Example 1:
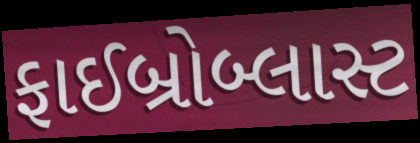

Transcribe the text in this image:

ફાઈબ્રોબ્લાસ્ટ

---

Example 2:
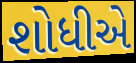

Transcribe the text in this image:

શોધીએ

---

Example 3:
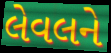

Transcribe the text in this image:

લેવલને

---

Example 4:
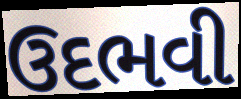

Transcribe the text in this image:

ઉદભવી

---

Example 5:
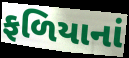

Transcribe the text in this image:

ફળિયાનાં